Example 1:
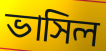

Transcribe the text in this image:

ভাসিল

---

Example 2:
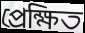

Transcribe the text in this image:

প্রেক্ষিত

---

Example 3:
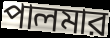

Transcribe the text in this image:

পালমার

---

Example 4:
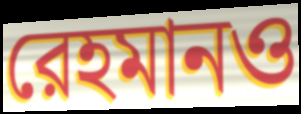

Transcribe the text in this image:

রেহমানও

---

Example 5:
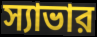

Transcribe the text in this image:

স্যাভার